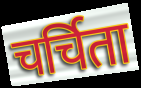
चर्चिता